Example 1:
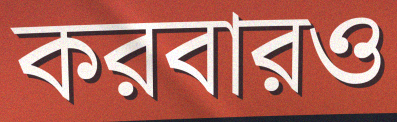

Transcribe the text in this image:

করবারও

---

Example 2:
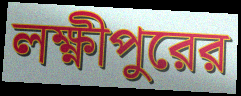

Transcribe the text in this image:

লক্ষ্ণীপুরের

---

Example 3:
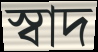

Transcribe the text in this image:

স্বাদ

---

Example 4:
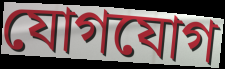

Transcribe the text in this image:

যোগযোগ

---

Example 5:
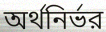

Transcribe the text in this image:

অর্থনির্ভর